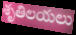
శృతిలయలు